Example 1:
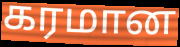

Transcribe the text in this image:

கரமான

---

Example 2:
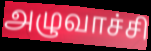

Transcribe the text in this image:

அழுவாச்சி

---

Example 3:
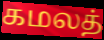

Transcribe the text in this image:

கமலத்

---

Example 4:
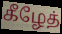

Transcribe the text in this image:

கீழேத்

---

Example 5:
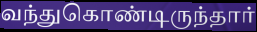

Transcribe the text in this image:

வந்துகொண்டிருந்தார்